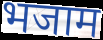
भजाम